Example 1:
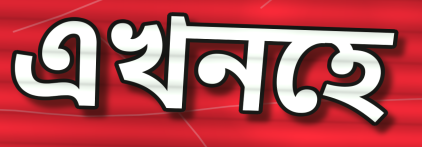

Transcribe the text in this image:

এখনহে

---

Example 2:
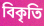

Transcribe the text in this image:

বিকৃতি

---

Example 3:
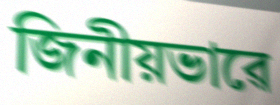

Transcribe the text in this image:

জিনীয়ভাৱে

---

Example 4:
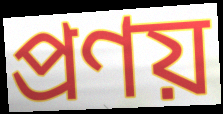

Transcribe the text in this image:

প্ৰণয়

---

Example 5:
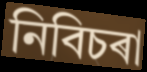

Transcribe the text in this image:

নিবিচৰা